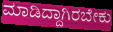
ಮಾಡಿದ್ದಾಗಿರಬೇಕು